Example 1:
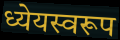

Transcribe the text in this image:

ध्येयस्वरूप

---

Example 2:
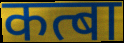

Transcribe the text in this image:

कत्बा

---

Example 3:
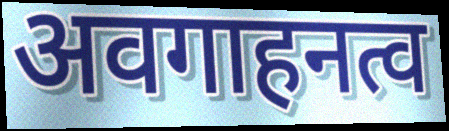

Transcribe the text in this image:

अवगाहनत्व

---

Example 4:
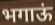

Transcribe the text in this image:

भगाऊं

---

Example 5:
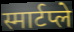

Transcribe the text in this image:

स्मार्टप्ले